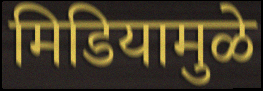
मिडियामुळे